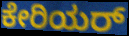
ಕೇರಿಯರ್